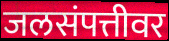
जलसंपत्तीवर